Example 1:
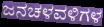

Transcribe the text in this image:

ಜನಚಳವಳಿಗಳ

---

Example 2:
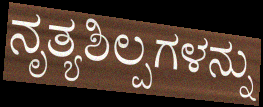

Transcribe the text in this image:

ನೃತ್ಯಶಿಲ್ಪಗಳನ್ನು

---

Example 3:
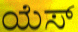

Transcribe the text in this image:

ಯೆಸ್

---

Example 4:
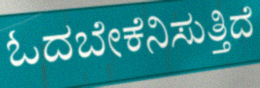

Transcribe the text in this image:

ಓದಬೇಕೆನಿಸುತ್ತಿದೆ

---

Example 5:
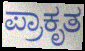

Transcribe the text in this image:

ಪ್ರಾಕೃತ